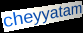
cheyyatam